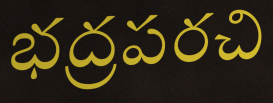
భద్రపరచి